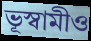
ভূস্বামীও